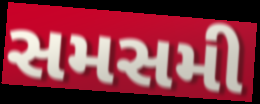
સમસમી